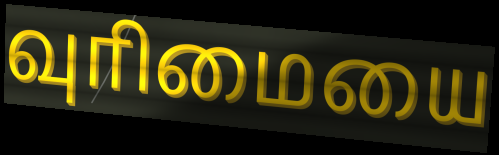
வுரிமையை